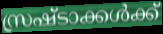
സ്രഷ്ടാക്കൾക്ക്